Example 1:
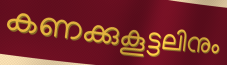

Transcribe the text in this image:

കണക്കുകൂട്ടലിനും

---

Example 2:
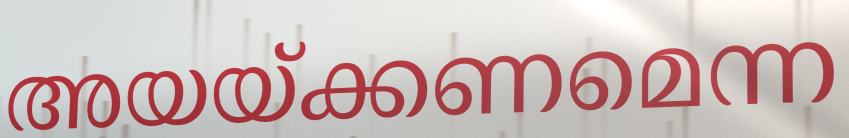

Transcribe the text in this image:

അയയ്ക്കണമെന്ന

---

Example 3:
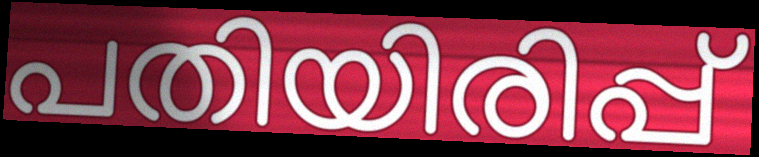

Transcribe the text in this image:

പതിയിരിപ്പ്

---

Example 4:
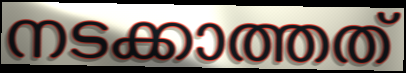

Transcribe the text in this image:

നടക്കാത്തത്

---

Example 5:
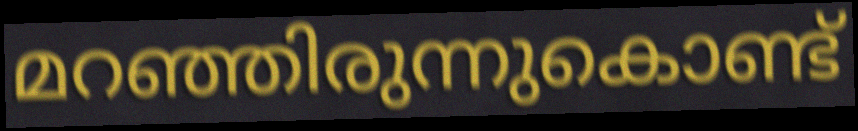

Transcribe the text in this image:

മറഞ്ഞിരുന്നുകൊണ്ട്